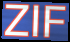
ZIF